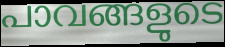
പാവങ്ങളുടെ